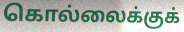
கொல்லைக்குக்